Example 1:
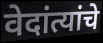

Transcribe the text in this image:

वेदांत्यांचे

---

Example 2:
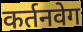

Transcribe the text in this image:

कर्तनवेग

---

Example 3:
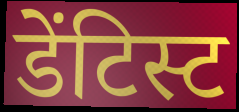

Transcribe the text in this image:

डेंटिस्ट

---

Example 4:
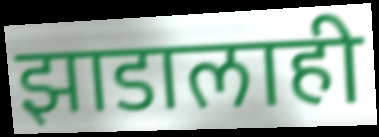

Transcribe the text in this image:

झाडालाही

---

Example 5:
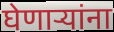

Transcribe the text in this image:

घेणाऱ्यांना